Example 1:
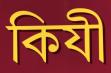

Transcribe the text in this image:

কিযী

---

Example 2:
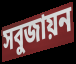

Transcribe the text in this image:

সবুজায়ন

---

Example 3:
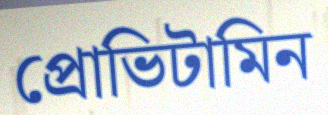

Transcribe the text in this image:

প্রোভিটামিন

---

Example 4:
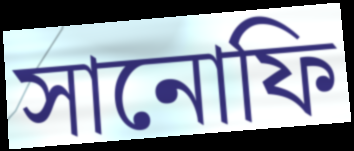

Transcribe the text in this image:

সানোফি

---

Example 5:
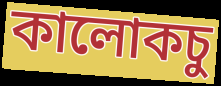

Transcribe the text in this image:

কালোকচু